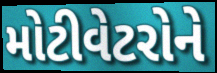
મોટીવેટરોને